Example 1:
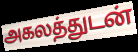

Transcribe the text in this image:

அகலத்துடன்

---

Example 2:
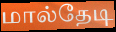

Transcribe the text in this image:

மால்தேடி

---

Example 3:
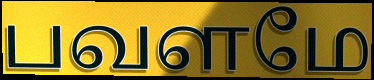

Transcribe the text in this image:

பவளமே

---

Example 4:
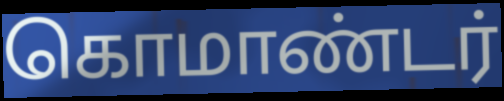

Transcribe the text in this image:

கொமாண்டர்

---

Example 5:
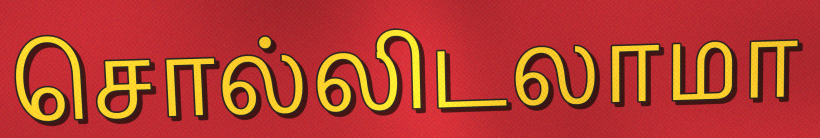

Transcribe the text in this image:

சொல்லிடலாமா